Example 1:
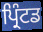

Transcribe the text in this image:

ਪ੍ਰਿੰਟਡ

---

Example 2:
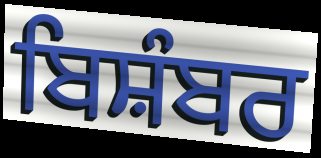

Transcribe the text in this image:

ਬਿਸ਼ੰਬਰ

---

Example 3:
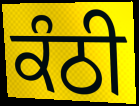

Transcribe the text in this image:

ਕੰਠੀ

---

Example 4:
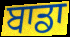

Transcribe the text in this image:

ਬਾਡਾ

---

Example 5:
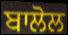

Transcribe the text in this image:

ਬਾਲੋਲ